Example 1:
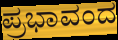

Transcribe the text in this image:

ಪ್ರಭಾವಂದ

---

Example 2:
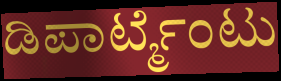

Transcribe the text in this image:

ಡಿಪಾರ್ಟ್ಮೆಂಟು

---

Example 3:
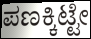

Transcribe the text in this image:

ಪಣಕ್ಕಿಟ್ಟೇ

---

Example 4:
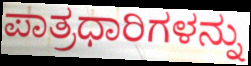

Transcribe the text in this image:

ಪಾತ್ರಧಾರಿಗಳನ್ನು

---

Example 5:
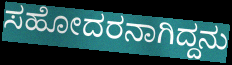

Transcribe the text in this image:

ಸಹೋದರನಾಗಿದ್ದನು